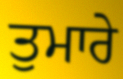
ਤੁਮਾਰੇ